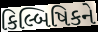
કિલ્બિષિકને